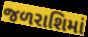
જળરાશિમાં